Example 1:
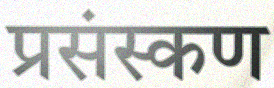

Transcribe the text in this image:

प्रसंस्कण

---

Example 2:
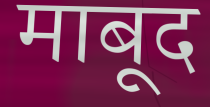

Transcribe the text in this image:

माबूद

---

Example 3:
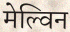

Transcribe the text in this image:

मेल्विन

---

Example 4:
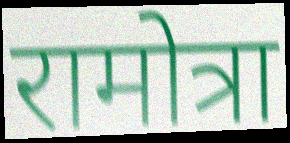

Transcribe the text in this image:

रामोत्रा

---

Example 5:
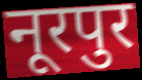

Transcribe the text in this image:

नूरपुर